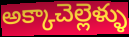
అక్కాచెల్లెళ్ళు